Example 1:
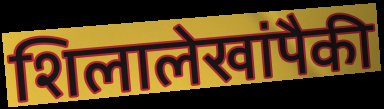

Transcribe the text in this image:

शिलालेखांपैकी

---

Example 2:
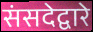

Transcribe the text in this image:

संसदेद्वारे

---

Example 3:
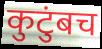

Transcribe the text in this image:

कुटुंबच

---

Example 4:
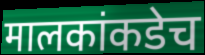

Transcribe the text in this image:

मालकांकडेच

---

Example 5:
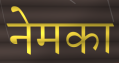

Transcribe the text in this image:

नेमका